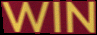
WIN